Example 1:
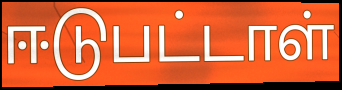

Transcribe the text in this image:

ஈடுபட்டாள்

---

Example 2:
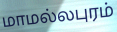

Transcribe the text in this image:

மாமல்லபுரம்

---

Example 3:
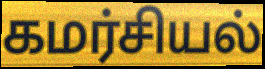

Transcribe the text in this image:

கமர்சியல்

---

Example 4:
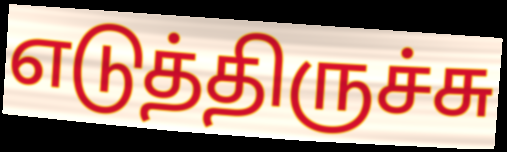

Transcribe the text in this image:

எடுத்திருச்சு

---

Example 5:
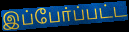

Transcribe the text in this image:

இப்பேர்ப்பட்ட